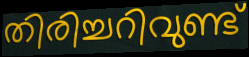
തിരിച്ചറിവുണ്ട്